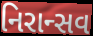
નિરાન્સવ